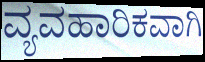
ವ್ಯವಹಾರಿಕವಾಗಿ